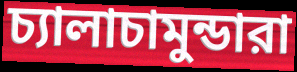
চ্যালাচামুন্ডারা